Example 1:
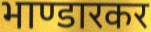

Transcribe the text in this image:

भाण्डारकर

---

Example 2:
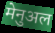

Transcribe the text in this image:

मेनुअल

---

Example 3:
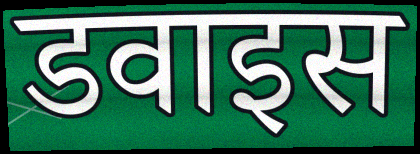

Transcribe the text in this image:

डवाइस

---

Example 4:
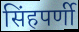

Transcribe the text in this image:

सिंहपर्णी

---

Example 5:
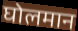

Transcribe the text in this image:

घोलमान